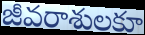
జీవరాశులకూ